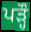
ਪੜ੍ਹੌ